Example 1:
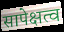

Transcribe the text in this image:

सापेक्षत्व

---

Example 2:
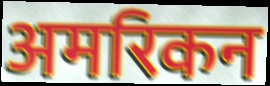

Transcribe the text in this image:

अमरिकन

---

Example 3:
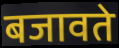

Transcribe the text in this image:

बजावते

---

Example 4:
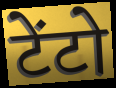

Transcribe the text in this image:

टेंटो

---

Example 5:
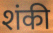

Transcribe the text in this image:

शंकी